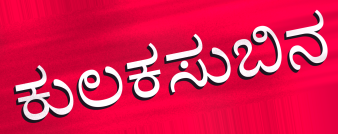
ಕುಲಕಸುಬಿನ